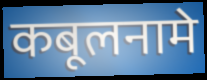
कबूलनामे